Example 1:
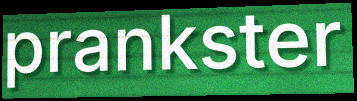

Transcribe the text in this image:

prankster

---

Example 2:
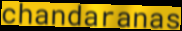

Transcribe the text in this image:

chandaranas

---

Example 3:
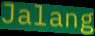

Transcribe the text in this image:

Jalang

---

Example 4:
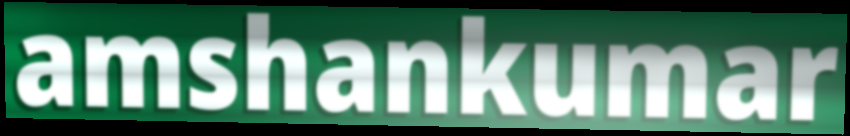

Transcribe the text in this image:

amshankumar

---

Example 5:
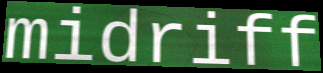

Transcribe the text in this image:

midriff